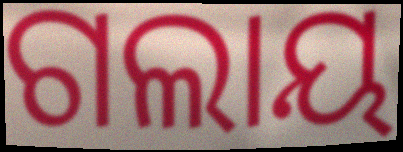
ଗଲାୟ